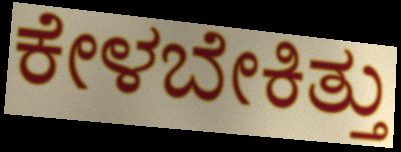
ಕೇಳಬೇಕಿತ್ತು